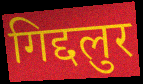
गिद्दलुर